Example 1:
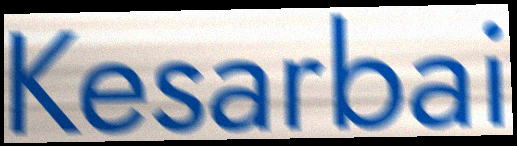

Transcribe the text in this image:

Kesarbai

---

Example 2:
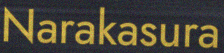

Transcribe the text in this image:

Narakasura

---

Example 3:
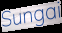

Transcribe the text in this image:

Sungai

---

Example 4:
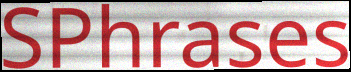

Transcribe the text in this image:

SPhrases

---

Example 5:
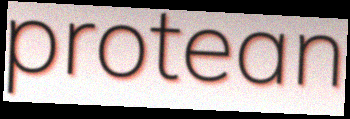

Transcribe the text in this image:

protean